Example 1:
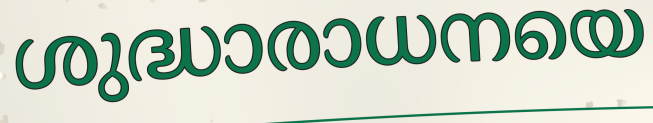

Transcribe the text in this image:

ശുദ്ധാരാധനയെ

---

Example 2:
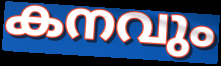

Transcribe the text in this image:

കനവും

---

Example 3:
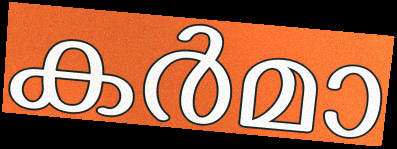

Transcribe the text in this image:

കർമാ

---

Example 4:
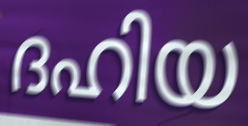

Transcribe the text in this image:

ദഹിയ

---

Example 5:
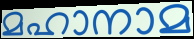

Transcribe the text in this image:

മഹാനാമ